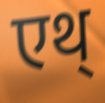
एथ्